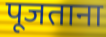
पूजताना